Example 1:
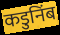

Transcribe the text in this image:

कडुनिंब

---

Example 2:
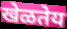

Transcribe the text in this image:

खेळतेय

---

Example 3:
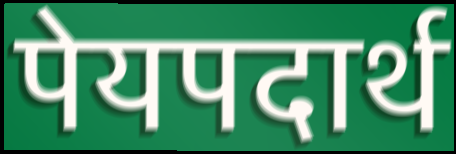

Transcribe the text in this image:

पेयपदार्थ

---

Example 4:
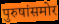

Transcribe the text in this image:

पुरुषांसमोर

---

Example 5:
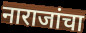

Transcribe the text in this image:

नाराजांचा